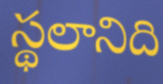
స్థలానిది